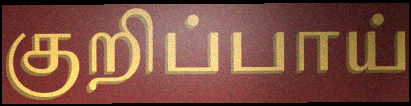
குறிப்பாய்